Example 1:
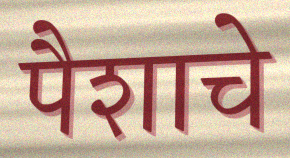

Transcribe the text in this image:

पैशाचे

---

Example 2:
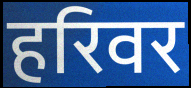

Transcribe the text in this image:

हरिवर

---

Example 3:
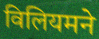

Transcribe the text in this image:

विलियमने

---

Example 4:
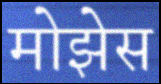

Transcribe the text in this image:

मोझेस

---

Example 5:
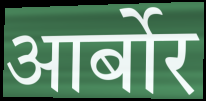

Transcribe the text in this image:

आर्बोर